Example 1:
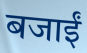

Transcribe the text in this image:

बजाईं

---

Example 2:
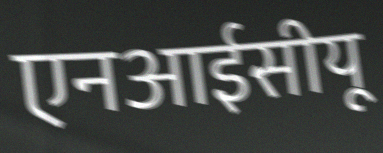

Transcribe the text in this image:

एनआईसीयू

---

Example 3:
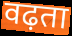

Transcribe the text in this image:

वढ़ता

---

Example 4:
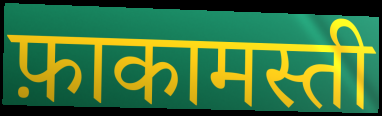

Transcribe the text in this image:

फ़ाकामस्ती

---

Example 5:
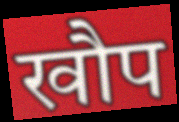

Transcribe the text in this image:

खौप